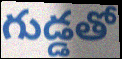
గుడ్డతో